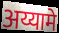
अय्यामे